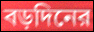
বড়দিনের